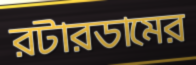
রটারডামের